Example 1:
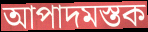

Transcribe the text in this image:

আপাদমস্তক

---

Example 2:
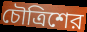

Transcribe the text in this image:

চৌত্রিশের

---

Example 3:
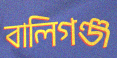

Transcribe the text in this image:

বালিগঞ্জ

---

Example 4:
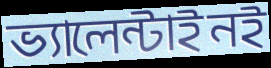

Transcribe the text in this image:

ভ্যালেন্টাইনই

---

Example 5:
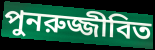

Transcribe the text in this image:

পুনরুজ্জীবিত